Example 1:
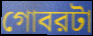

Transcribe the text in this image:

গোবরটা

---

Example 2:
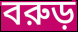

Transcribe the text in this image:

বরুড়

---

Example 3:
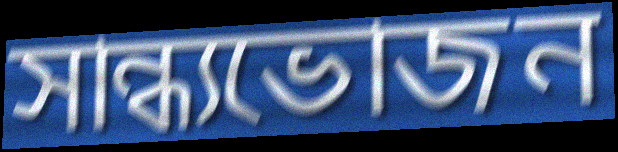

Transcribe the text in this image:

সান্ধ্যভোজন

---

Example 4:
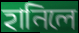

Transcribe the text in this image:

হানিলে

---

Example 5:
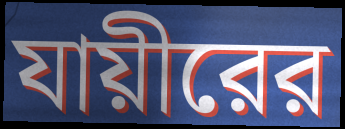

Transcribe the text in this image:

যায়ীরের